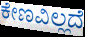
ಕೇಣವಿಲ್ಲದೆ